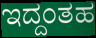
ಇದ್ದಂತಹ